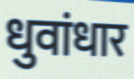
धुवांधार